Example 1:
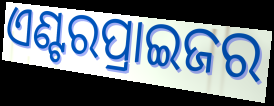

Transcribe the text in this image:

ଏଣ୍ଟରପ୍ରାଇଜର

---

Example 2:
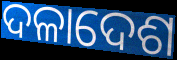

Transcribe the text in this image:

ଦଳାଦେଶ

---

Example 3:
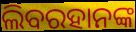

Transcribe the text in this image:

ଲିବରହାନଙ୍କ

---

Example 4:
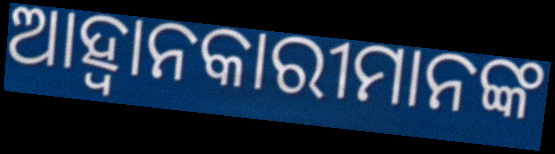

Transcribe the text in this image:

ଆହ୍ଵାନକାରୀମାନଙ୍କ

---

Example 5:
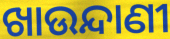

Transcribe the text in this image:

ଖାଉନ୍ଦାଣୀ